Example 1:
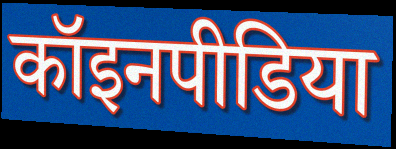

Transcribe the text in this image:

कॉइनपीडिया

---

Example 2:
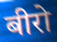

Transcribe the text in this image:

बीरो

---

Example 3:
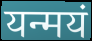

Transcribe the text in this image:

यन्मयं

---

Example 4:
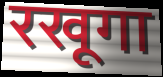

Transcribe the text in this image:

रखूगा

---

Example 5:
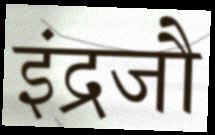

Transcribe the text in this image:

इंद्रजौ